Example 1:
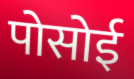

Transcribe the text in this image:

पोसोई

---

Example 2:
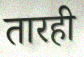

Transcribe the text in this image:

तारही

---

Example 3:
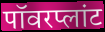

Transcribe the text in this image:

पॉवरप्लांट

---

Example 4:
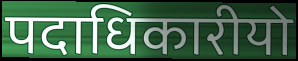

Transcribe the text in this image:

पदाधिकारीयो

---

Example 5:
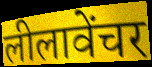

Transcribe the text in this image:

लीलावेंचर